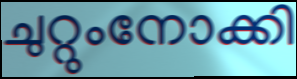
ചുറ്റുംനോക്കി